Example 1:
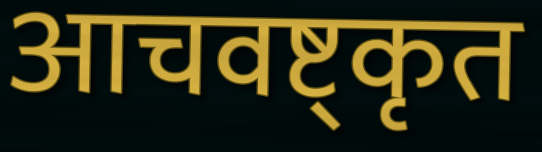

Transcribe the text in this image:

आचवष्ट्कृत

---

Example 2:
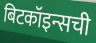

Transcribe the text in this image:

बिटकॉइन्सची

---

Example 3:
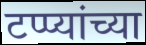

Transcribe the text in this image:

टप्प्यांच्या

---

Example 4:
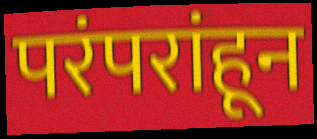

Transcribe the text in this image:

परंपरांहून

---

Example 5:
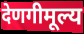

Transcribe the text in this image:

देणगीमूल्य